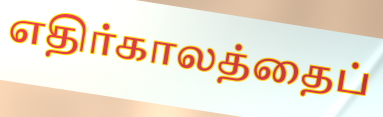
எதிர்காலத்தைப்